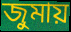
জুমায়